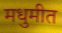
मधुमीत